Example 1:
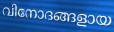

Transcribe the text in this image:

വിനോദങ്ങളായ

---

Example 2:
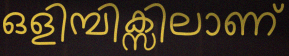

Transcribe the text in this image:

ഒളിമ്പിക്സിലാണ്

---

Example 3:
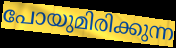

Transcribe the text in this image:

പോയുമിരിക്കുന്ന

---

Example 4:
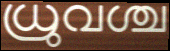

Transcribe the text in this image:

ധ്രുവശ്ച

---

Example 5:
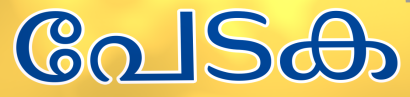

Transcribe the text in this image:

പേടക